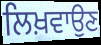
ਲਿਖ਼ਵਾਉਣ